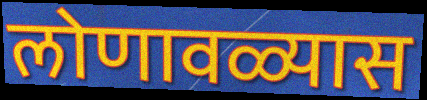
लोणावळ्यास